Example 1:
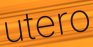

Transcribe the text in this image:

utero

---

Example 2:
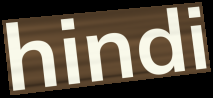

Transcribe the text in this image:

hindi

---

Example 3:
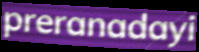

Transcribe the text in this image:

preranadayi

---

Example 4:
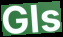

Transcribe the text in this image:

Gls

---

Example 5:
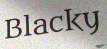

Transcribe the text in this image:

Blacky